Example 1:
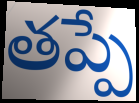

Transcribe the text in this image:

తప్పే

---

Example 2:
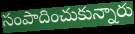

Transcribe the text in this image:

సంపాదించుకున్నారు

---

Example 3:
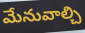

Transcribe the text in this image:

మేనువాల్చి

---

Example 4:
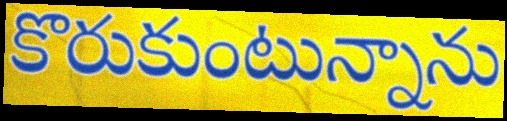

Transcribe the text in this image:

కొరుకుంటున్నాను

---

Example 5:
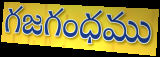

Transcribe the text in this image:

గజగంధము